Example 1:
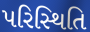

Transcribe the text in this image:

પરિસ્‍થિતિ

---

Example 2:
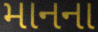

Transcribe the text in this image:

માનના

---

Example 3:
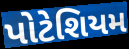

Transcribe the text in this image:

પોટેશિયમ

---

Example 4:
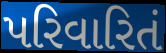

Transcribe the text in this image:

પરિવારિતં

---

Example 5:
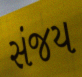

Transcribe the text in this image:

સંજય